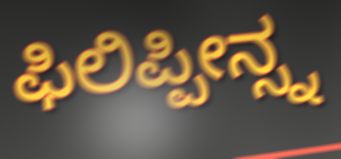
ಫಿಲಿಪ್ಪೀನ್ಸ್ನ